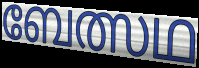
ബേത്സഥ